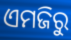
ଏମଜିରୁ